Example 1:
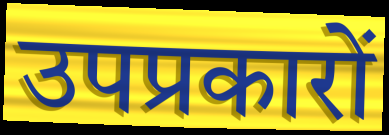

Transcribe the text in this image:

उपप्रकारों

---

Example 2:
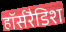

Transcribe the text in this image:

हॉर्सरैडिश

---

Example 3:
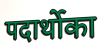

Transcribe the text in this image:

पदार्थोका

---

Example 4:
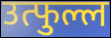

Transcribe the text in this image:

उत्फुल्ल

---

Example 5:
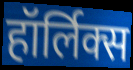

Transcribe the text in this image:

हॉर्लिक्‍स